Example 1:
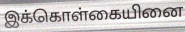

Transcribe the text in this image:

இக்கொள்கையினை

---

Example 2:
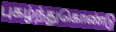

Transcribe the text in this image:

புகழ்ந்துகொண்டு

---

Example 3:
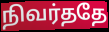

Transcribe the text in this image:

நிவர்ததே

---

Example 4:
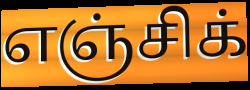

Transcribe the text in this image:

எஞ்சிக்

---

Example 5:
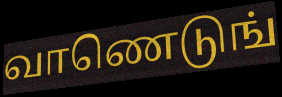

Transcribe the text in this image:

வாணெடுங்